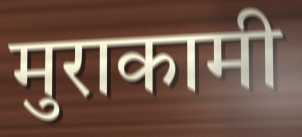
मुराकामी